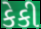
કેકી